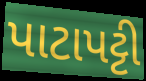
પાટાપટ્ટી